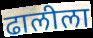
ढालीला